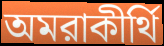
অমরাকীর্থি